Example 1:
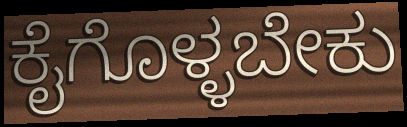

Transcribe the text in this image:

ಕೈಗೊಳ್ಳಬೇಕು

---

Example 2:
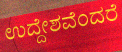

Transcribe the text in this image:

ಉದ್ದೇಶವೆಂದರೆ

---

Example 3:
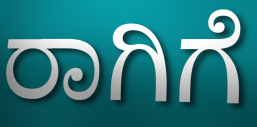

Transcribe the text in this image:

ರಾಗಿಗೆ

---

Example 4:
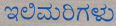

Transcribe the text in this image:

ಇಲಿಮರಿಗಳು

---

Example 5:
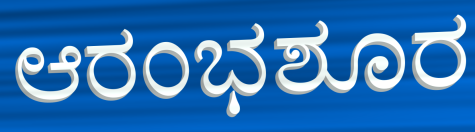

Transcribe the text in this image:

ಆರಂಭಶೂರ